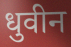
धुवीन